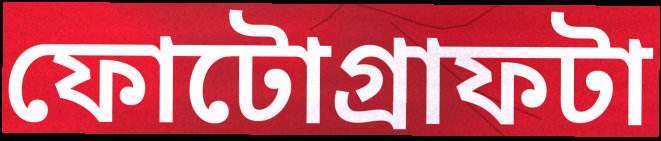
ফোটোগ্রাফটা